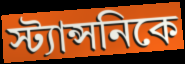
স্ট্যান্সনিকে